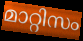
മാറ്റിസം